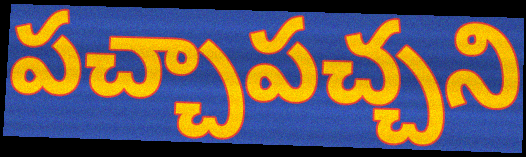
పచ్చాపచ్చని